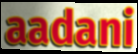
aadani